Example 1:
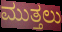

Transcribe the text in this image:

ಮುತ್ತಲು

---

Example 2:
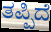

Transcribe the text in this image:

ತಪ್ಪಿದೆ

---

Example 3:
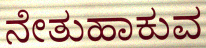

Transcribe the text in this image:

ನೇತುಹಾಕುವ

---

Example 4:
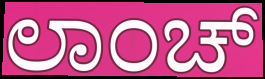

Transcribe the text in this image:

ಲಾಂಚ್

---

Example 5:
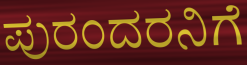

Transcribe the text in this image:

ಪುರಂದರನಿಗೆ